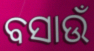
ବସାଉଁ